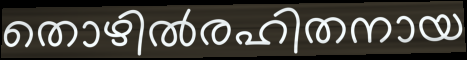
തൊഴിൽരഹിതനായ